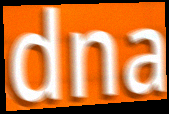
dna